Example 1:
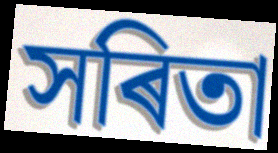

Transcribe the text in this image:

সৰিতা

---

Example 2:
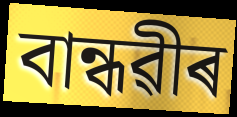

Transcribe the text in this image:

বান্ধৱীৰ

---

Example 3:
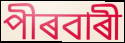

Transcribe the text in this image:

পীৰবাৰী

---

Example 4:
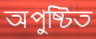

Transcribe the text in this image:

অপুষ্টিত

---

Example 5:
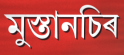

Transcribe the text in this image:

মুস্তানচিৰ